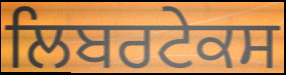
ਲਿਬਰਟੇਕਸ